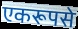
एकरूपसे